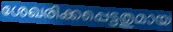
ശേഖരിക്കപ്പെട്ടതുമായ